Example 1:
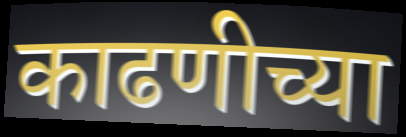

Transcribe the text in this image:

काढणीच्या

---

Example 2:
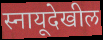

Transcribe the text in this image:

स्नायूदेखील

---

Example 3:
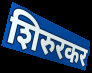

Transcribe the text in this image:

शिरुरकर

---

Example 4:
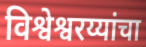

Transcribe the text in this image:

विश्वेश्वरय्यांचा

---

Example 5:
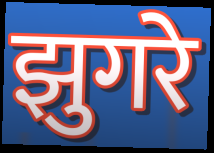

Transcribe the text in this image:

झुगरे